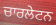
ਚਾਰਲੇਟਨ